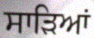
ਸਾੜਿਆਂ